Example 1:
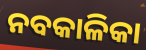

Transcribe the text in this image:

ନବକାଳିକା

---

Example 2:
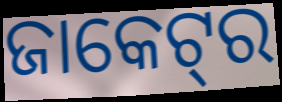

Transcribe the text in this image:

ଜାକେଟ୍‌ର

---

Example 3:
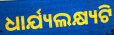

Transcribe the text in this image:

ଧାର୍ଯ୍ୟଲକ୍ଷ୍ୟଟି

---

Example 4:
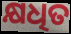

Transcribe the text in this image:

କ୍ଷଧିତ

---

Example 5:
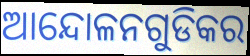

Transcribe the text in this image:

ଆନ୍ଦୋଳନଗୁଡିକର